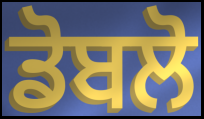
ਡੋਬਲੋ